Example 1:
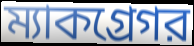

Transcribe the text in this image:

ম্যাকগ্রেগর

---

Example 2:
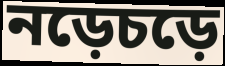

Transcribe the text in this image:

নড়েচড়ে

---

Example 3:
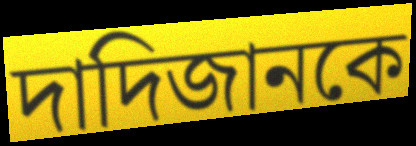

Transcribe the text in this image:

দাদিজানকে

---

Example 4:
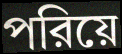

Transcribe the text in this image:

পরিয়ে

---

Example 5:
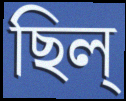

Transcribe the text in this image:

ছিল্